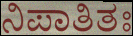
ನಿಪಾತಿತಃ